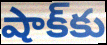
షాక్‌కు